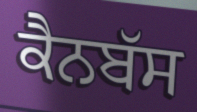
ਕੈਨਬੱਸ